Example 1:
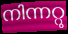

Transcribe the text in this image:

നിന്നറ്റു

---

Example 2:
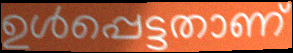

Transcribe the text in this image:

ഉൾപ്പെട്ടതാണ്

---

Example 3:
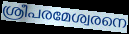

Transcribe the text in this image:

ശ്രീപരമേശ്വരനെ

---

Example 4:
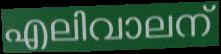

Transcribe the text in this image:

എലിവാലന്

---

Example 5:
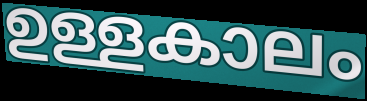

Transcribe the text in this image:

ഉള്ളകാലം